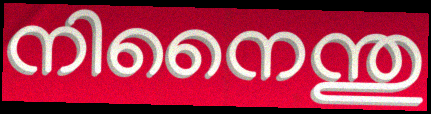
നിനൈന്തു